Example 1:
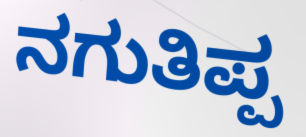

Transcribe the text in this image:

ನಗುತಿಪ್ಪ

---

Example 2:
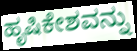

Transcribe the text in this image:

ಹೃಷಿಕೇಶವನ್ನು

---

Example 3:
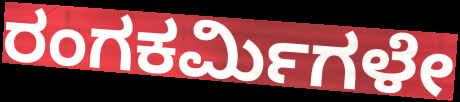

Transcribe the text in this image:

ರಂಗಕರ್ಮಿಗಳೇ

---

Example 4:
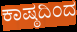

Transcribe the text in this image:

ಕಾಷ್ಠದಿಂದ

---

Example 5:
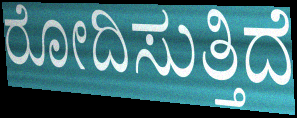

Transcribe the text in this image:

ರೋದಿಸುತ್ತಿದೆ